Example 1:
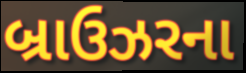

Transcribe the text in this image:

બ્રાઉઝરના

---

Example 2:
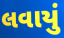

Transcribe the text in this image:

લવાયું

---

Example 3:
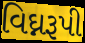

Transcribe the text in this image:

વિઘ્નરૂપી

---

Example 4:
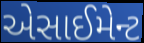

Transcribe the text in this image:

એસાઈમેન્ટ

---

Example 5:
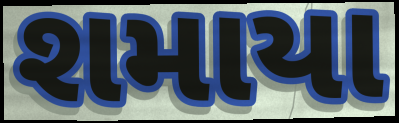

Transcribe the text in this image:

શમાયા